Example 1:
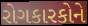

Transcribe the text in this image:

રોગકારકોને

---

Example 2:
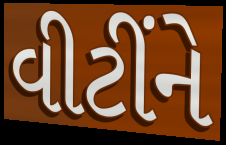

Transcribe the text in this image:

વીટીંને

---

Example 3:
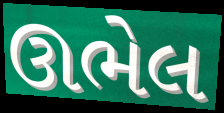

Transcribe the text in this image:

ઊભેલ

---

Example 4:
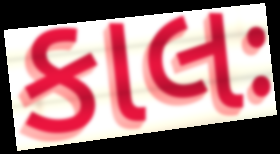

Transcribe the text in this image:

કાલઃ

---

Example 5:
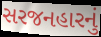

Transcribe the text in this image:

સરજનહારનું